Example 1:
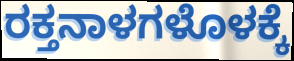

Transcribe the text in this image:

ರಕ್ತನಾಳಗಳೊಳಕ್ಕೆ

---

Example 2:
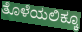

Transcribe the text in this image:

ತೊಳೆಯಲಿಕ್ಕೂ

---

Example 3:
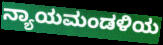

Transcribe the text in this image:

ನ್ಯಾಯಮಂಡಳಿಯ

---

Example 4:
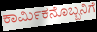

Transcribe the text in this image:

ಕಾರ್ಮಿಕನೊಬ್ಬನಿಗೆ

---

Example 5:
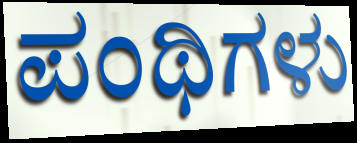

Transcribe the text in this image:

ಪಂಥಿಗಳು